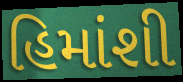
હિમાંશી